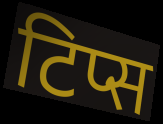
टिप्स